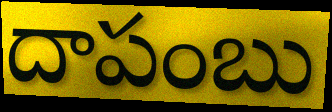
దాపంబు